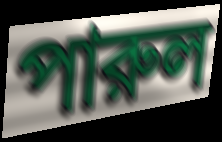
পারুল